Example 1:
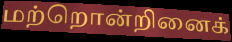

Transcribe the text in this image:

மற்றொன்றினைக்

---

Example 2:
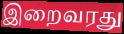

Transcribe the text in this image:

இறைவரது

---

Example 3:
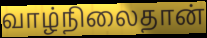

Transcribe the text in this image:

வாழ்நிலைதான்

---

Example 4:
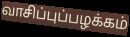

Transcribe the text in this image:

வாசிப்புப்பழக்கம்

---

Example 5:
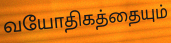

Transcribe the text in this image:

வயோதிகத்தையும்